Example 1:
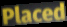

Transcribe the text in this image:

Placed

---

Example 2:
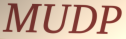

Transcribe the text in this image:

MUDP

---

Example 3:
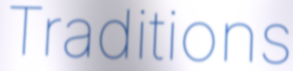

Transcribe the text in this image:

Traditions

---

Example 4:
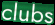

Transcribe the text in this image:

clubs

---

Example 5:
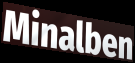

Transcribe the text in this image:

Minalben